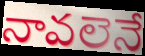
నావలెనే